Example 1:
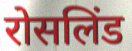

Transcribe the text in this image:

रोसलिंड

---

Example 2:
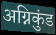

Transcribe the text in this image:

अग्निकुंड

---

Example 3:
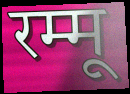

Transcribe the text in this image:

रम्मू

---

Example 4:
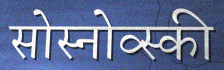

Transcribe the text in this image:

सोस्नोव्स्की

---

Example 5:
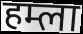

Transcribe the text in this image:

हम्ला